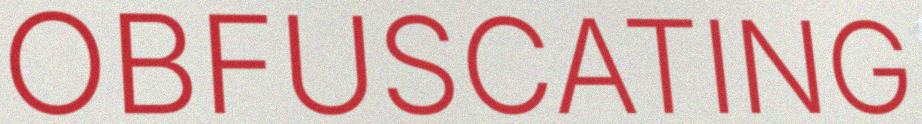
OBFUSCATING